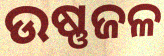
ଉଷ୍ଣଜଳ